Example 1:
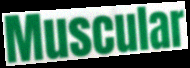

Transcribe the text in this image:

Muscular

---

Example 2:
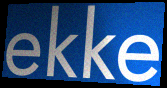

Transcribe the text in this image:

ekke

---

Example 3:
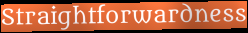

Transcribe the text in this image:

Straightforwardness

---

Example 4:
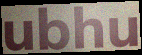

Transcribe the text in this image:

ubhu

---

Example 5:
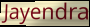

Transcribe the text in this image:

Jayendra